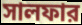
সালফার